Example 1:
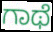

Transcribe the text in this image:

ಗಾಥೆ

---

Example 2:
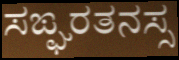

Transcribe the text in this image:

ಸಙ್ಘರತನಸ್ಸ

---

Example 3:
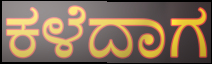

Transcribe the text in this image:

ಕಳೆದಾಗ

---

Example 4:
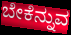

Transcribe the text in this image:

ಬೇಕೆನ್ನುವ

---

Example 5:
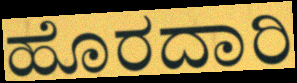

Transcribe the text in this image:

ಹೊರದಾರಿ